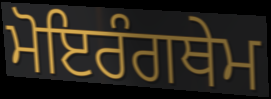
ਮੋਇਰੰਗਥੇਮ